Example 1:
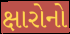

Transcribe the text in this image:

ક્ષારોનો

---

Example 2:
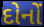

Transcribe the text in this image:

દોનોં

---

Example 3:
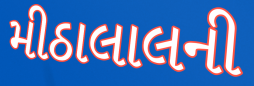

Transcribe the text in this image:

મીઠાલાલની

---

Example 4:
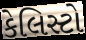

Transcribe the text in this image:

કેલિસ્ટો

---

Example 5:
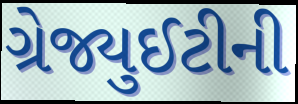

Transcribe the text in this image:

ગ્રેજ્યુઈટીની